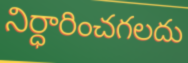
నిర్ధారించగలదు